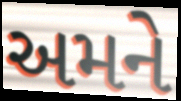
અમને